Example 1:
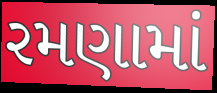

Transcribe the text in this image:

રમણામાં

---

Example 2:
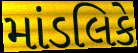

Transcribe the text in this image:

માંડલિકે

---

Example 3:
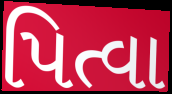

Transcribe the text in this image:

પિત્વા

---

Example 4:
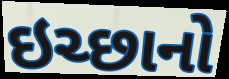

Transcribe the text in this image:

ઇચ્છાનો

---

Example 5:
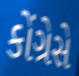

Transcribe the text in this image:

કોંગ્રેસે